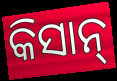
କିସାନ୍